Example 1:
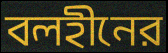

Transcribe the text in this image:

বলহীনের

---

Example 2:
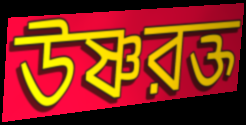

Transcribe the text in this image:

উষ্ণরক্ত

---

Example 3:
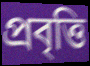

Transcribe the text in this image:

প্রবৃত্তি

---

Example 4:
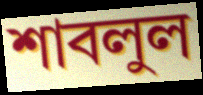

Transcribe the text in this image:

শাবলুল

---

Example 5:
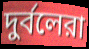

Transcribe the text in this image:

দুর্বলেরা